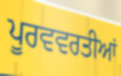
ਪੂਰਵਵਰਤੀਆਂ